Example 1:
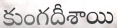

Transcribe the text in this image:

కుంగదీశాయి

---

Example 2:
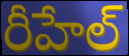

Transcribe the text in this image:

రీహేల్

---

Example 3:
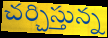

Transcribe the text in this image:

చర్చిస్తున్న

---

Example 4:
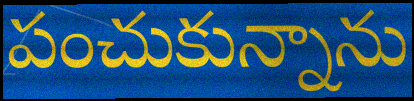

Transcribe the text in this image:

పంచుకున్నాను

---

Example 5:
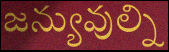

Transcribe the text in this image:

జన్యువుల్ని